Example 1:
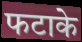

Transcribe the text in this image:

फटाके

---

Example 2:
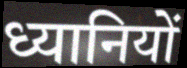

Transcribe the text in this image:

ध्यानियों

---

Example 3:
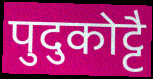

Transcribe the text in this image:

पुदुकोट्टै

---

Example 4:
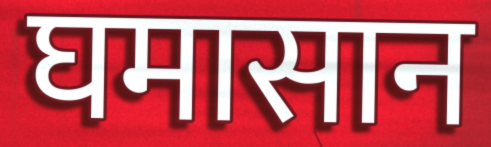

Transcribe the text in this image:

घमासान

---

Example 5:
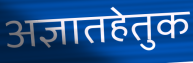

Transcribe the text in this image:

अज्ञातहेतुक